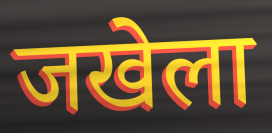
जखेला